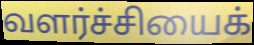
வளர்ச்சியைக்